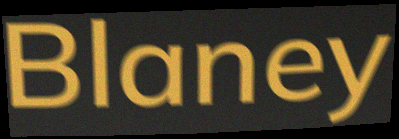
Blaney